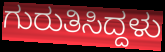
ಗುರುತಿಸಿದ್ದಳು